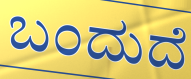
ಬಂದುದೆ